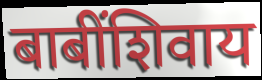
बाबींशिवाय